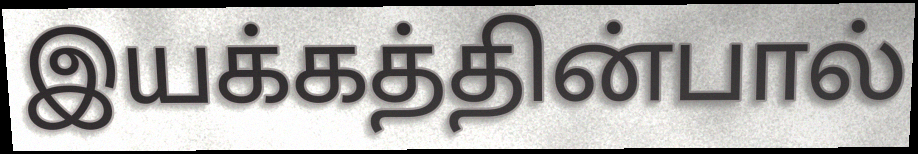
இயக்கத்தின்பால்